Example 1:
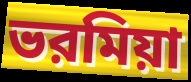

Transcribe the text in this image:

ভরমিয়া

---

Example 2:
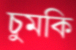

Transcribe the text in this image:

চুমকি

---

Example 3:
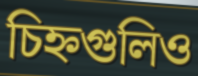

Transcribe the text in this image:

চিহ্নগুলিও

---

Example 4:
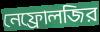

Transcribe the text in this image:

নেফ্রোলজির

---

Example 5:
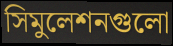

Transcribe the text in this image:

সিমুলেশনগুলো